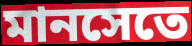
মানসেতে